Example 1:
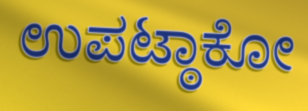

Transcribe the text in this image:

ಉಪಟ್ಠಾಕೋ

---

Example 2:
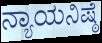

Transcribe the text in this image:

ನ್ಯಾಯನಿಷ್ಠೆ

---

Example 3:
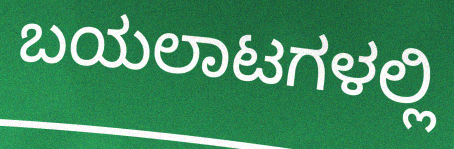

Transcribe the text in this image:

ಬಯಲಾಟಗಳಲ್ಲಿ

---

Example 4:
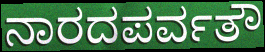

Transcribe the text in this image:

ನಾರದಪರ್ವತೌ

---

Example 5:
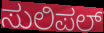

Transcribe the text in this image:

ಸುಲಿಪಲ್